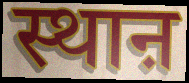
स्थाऩ